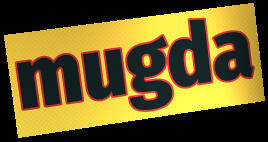
mugda